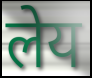
लेय